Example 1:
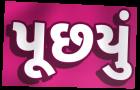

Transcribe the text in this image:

પૂછયું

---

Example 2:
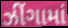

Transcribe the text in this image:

ઝીંગામાં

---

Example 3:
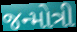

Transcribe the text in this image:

જન્મોત્રી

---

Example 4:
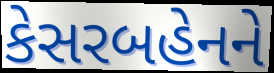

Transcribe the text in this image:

કેસરબહેનને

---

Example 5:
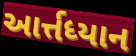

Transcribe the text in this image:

આર્ત્તધ્યાન